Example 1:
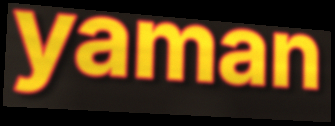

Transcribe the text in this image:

yaman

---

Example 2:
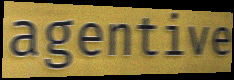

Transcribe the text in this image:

agentive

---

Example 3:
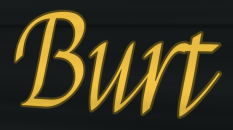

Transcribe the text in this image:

Burt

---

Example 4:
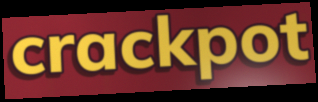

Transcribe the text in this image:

crackpot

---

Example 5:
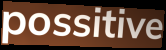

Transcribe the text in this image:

possitive